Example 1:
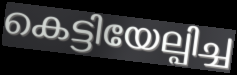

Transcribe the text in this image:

കെട്ടിയേല്പിച്ച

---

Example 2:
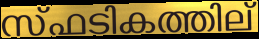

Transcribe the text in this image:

സ്ഫടികത്തില്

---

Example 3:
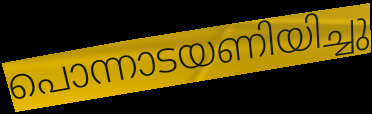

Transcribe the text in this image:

പൊന്നാടയണിയിച്ചു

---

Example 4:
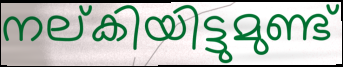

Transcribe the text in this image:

നല്കിയിട്ടുമുണ്ട്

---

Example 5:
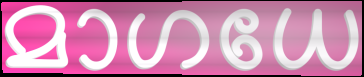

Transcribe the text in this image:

മാഗധേ